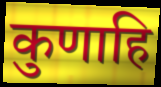
कुणाहि